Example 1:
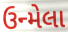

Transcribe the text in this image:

ઉન્મેલા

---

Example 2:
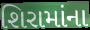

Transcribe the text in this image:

શિરામાંના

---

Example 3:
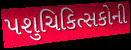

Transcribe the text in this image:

પશુચિકિત્સકોની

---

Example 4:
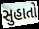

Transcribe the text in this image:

સુહાતો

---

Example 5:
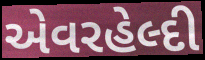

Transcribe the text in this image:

એવરહેલ્દી